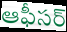
ఆఫీసర్